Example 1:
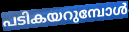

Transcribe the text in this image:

പടികയറുമ്പോൾ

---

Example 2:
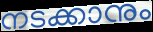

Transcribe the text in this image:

നടക്കാനും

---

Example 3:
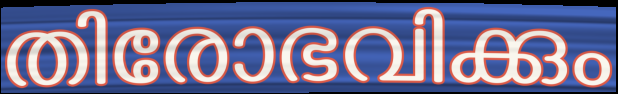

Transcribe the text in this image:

തിരോഭവിക്കും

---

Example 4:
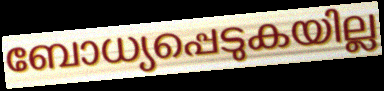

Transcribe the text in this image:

ബോധ്യപ്പെടുകയില്ല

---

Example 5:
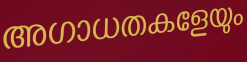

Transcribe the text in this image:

അഗാധതകളേയും